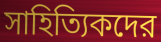
সাহিত্যিকদের